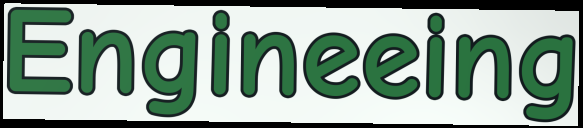
Engineeing